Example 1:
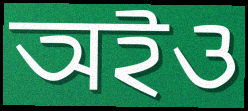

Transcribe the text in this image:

অইও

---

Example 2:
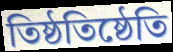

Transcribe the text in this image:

তিষ্ঠতিষ্ঠেতি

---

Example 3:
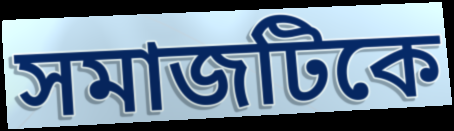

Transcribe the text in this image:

সমাজটিকে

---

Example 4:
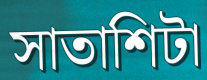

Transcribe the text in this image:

সাতাশিটা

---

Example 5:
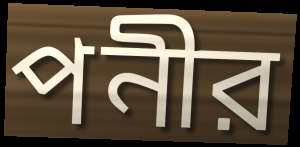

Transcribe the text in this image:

পনীর